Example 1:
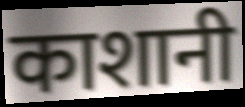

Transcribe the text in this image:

काशानी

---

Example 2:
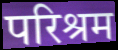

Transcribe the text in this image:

परिश्रम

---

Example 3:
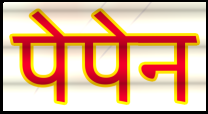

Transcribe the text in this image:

पेपेन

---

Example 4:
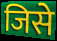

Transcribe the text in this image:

जिसे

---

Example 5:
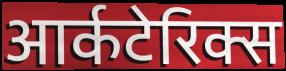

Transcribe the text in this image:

आर्कटेरिक्स